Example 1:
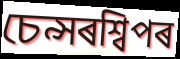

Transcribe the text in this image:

চেন্সৰশ্বিপৰ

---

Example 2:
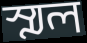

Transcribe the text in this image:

স্মল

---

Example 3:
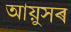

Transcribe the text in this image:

আয়ুসৰ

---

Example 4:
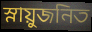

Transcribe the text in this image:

স্নায়ুজনিত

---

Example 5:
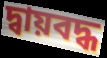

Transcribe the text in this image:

দ্বায়বদ্ধ